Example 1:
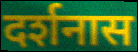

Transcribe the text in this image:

दर्शनास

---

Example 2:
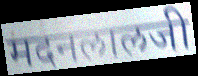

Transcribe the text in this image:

मदनलालजी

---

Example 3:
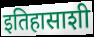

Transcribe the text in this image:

इतिहासाशी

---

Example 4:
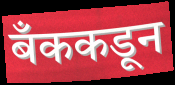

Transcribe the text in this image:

बँककडून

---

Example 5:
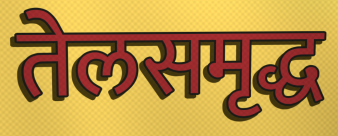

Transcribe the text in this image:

तेलसमृद्ध